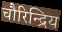
चौरिन्द्रिय